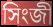
সিংজী